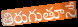
తిరుగుతూనే